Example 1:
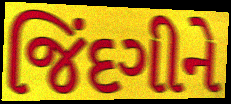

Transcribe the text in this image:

જિંદગીને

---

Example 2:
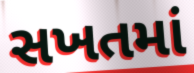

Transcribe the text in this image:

સખતમાં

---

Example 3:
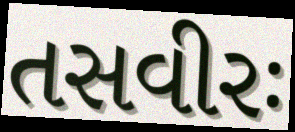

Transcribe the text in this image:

તસવીરઃ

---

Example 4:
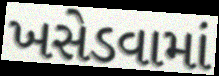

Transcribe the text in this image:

ખસેડવામાં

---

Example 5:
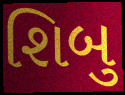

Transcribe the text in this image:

શિબુ